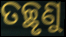
ତଚ୍ଛୃଣୁ